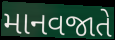
માનવજાતે